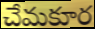
చేమకూర